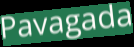
Pavagada